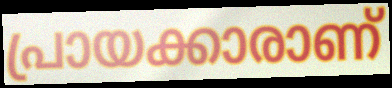
പ്രായക്കാരാണ്